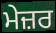
ਮੇਜ਼ਰ